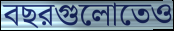
বছরগুলোতেও